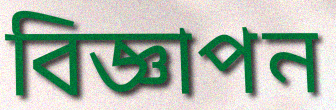
বিজ্ঞাপন